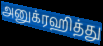
அனுக்ரஹித்து